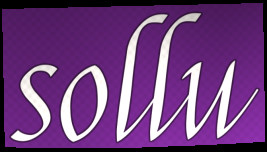
sollu